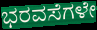
ಭರವಸೆಗಳೇ